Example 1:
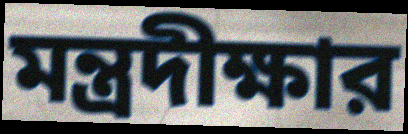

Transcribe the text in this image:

মন্ত্রদীক্ষার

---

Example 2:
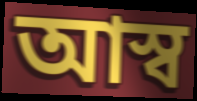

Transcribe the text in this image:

আস্ব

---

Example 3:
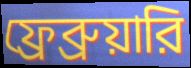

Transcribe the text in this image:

ফ্রেব্রুয়ারি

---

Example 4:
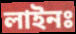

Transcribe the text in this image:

লাইনঃ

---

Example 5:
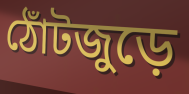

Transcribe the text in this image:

ঠোঁটজুড়ে